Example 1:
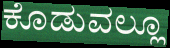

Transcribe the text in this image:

ಕೊಡುವಲ್ಲೂ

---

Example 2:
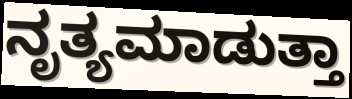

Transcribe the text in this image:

ನೃತ್ಯಮಾಡುತ್ತಾ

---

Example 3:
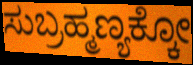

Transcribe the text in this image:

ಸುಬ್ರಹ್ಮಣ್ಯಕ್ಕೋ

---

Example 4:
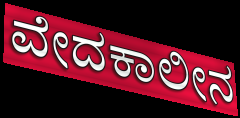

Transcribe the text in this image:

ವೇದಕಾಲೀನ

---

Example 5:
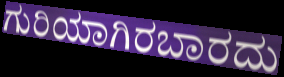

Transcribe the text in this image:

ಗುರಿಯಾಗಿರಬಾರದು